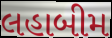
લહાબીમ